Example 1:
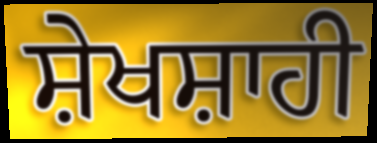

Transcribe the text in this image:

ਸ਼ੇਖਸ਼ਾਹੀ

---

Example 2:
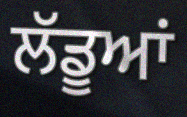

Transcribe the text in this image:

ਲੱਡੂਆਂ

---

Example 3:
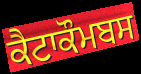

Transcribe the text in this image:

ਕੈਟਾਕੌਮਬਸ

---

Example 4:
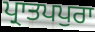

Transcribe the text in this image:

ਪ੍ਰਾਤਪਪੁਰਾ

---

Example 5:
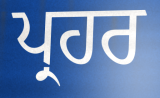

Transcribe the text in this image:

ਪ੍ਰਹਰ